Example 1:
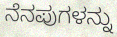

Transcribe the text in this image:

ನೆನಪುಗಳನ್ನು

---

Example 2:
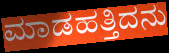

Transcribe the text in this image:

ಮಾಡಹತ್ತಿದನು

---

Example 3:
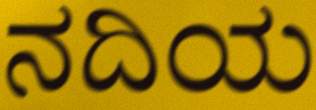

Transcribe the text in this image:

ನದಿಯ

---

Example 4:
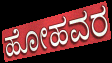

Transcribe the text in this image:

ಹೋಹವರ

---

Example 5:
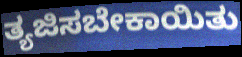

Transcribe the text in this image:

ತ್ಯಜಿಸಬೇಕಾಯಿತು